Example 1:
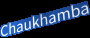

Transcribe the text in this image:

Chaukhamba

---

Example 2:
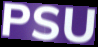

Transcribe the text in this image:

PSU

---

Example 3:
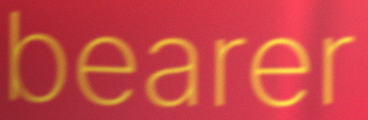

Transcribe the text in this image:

bearer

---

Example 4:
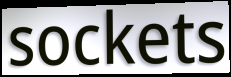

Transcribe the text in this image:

sockets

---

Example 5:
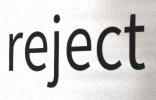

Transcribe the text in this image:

reject